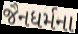
જૈનધર્મના